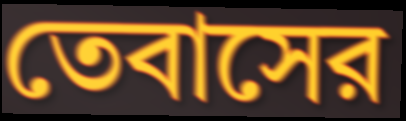
তেবাসের